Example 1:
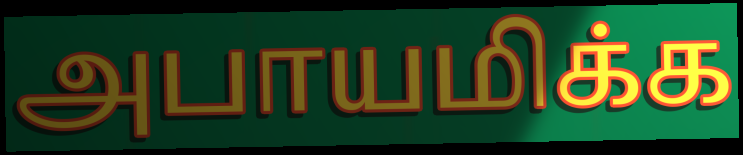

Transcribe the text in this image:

அபாயமிக்க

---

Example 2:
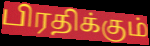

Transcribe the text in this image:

பிரதிக்கும்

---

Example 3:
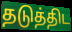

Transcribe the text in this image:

தடுத்திட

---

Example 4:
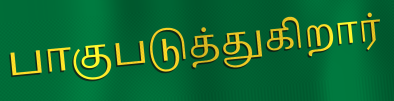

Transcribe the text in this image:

பாகுபடுத்துகிறார்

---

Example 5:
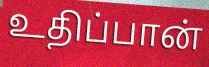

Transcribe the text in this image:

உதிப்பான்